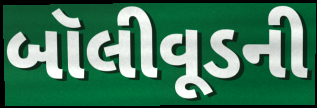
બૉલીવૂડની